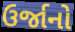
ઉર્જાનો